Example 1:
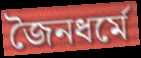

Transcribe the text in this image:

জৈনধর্মে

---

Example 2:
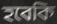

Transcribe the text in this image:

হবেকি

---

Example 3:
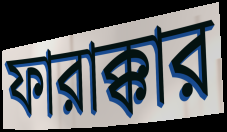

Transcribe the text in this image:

ফারাক্কার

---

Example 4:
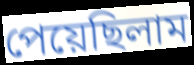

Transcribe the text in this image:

পেয়েছিলাম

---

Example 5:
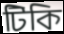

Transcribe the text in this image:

টিকি